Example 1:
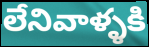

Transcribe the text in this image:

లేనివాళ్ళకి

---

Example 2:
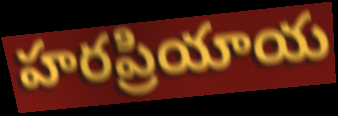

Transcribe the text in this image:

హరప్రియాయ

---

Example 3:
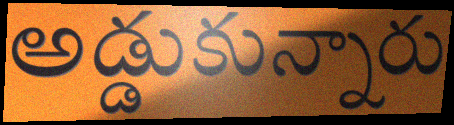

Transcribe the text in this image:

అడ్డుకున్నారు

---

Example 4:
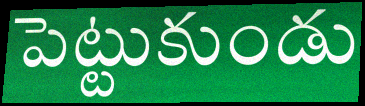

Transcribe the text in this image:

పెట్టుకుండు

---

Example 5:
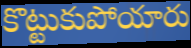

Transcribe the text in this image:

కొట్టుకుపోయారు